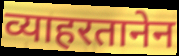
व्याहरतानेन